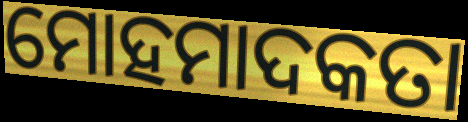
ମୋହମାଦକତା